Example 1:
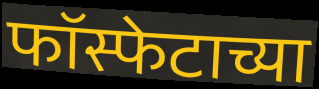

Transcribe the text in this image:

फॉस्फेटाच्या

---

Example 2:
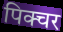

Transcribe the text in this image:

पिक्चर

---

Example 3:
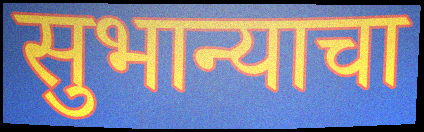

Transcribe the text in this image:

सुभान्याचा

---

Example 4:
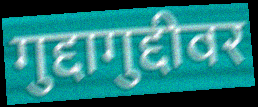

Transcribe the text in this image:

गुद्दागुद्दीवर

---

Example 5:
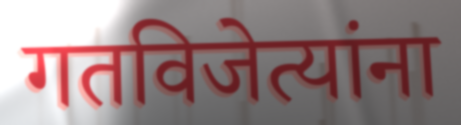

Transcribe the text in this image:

गतविजेत्यांना